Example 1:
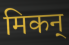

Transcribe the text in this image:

मिकन्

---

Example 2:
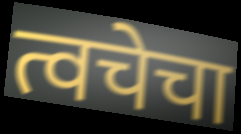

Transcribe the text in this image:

त्वचेचा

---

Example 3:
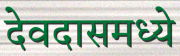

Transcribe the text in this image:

देवदासमध्ये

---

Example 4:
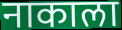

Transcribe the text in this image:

नाकाला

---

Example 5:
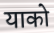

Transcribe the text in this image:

याको